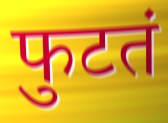
फुटतं